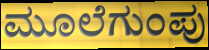
ಮೂಲೆಗುಂಪು